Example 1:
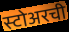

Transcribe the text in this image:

स्टोअरची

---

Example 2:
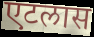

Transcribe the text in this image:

एटलास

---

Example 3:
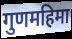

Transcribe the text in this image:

गुणमहिमा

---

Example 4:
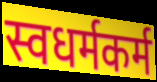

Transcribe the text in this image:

स्वधर्मकर्म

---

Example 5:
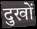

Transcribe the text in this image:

दुखों